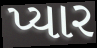
પ્યાર